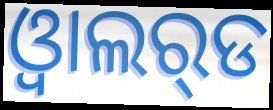
ଓ୍ବାଲର୍‌ଡ